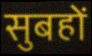
सुबहों